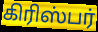
கிரிஸ்பர்